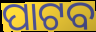
ପାଟବ